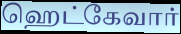
ஹெட்கேவார்